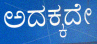
ಅದಕ್ಕದೇ